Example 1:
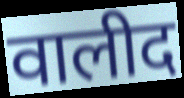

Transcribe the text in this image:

वालीद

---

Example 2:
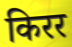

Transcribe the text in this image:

किरर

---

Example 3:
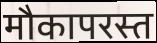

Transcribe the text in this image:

मौकापरस्त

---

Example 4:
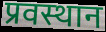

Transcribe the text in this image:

प्रवस्थान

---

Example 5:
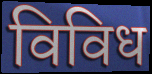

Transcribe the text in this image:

विविध